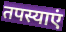
तपस्याएं